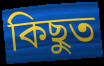
কিছুত